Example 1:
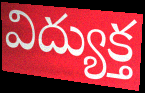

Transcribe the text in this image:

విద్యుక్త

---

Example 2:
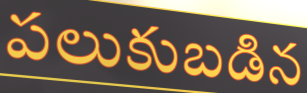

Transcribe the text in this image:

పలుకుబడిన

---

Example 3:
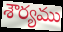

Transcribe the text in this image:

శౌర్యము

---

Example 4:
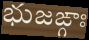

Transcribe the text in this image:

భుజఙ్గాః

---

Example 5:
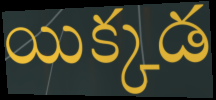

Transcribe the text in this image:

యిక్కడ